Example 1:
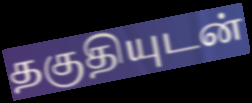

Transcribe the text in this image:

தகுதியுடன்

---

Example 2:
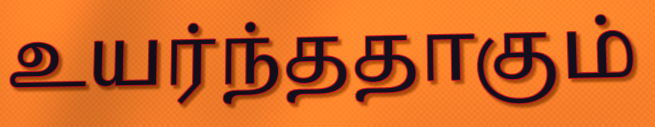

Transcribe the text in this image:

உயர்ந்ததாகும்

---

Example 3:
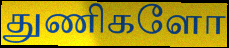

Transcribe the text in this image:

துணிகளோ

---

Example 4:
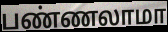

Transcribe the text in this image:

பண்ணலாமா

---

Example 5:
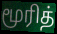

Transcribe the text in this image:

மூரித்